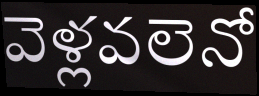
వెళ్లవలెనో